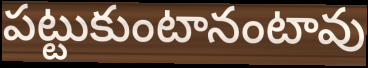
పట్టుకుంటానంటావు